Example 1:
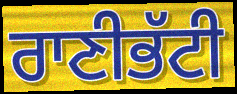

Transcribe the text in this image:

ਰਾਣੀਭੱਟੀ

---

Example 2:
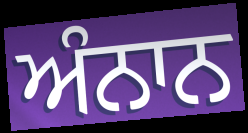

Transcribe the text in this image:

ਅੰਨਾਨ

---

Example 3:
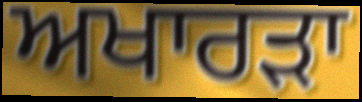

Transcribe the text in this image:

ਅਖਾਰੜਾ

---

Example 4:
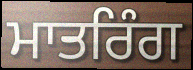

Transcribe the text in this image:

ਮਾਤਰਿੰਗ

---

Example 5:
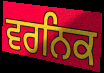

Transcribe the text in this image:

ਵਰਨਿਕ